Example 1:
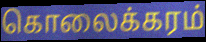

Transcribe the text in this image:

கொலைக்கரம்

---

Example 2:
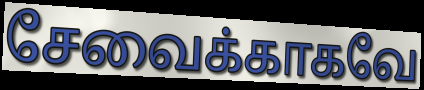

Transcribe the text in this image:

சேவைக்காகவே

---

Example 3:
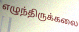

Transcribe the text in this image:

எழுந்திருக்கலை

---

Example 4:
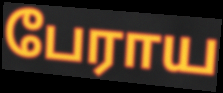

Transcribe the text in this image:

பேராய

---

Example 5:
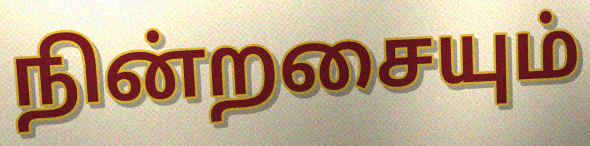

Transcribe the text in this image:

நின்றசையும்